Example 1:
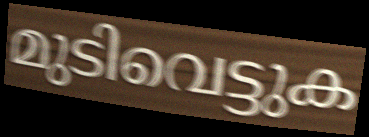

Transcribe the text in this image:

മുടിവെട്ടുക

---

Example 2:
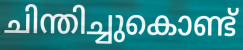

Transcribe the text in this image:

ചിന്തിച്ചുകൊണ്ട്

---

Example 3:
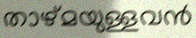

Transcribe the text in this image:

താഴ്മയുള്ളവൻ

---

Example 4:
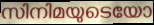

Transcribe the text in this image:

സിനിമയുടെയോ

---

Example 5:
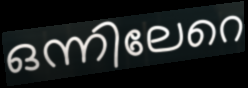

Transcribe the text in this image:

ഒന്നിലേറെ